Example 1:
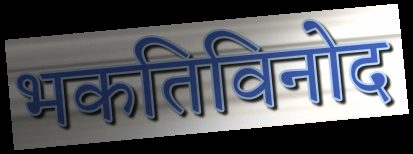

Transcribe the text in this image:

भकतिविनोद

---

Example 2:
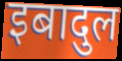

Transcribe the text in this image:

इबादुल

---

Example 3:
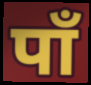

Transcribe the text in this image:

पाँ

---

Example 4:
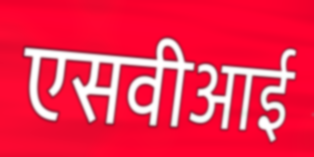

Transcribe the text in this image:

एसवीआई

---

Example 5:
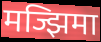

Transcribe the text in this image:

मज्झिमा